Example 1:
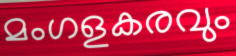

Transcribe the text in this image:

മംഗളകരവും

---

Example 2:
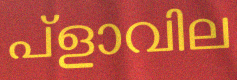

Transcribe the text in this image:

പ്ളാവില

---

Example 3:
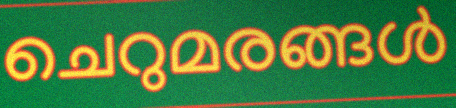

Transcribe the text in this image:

ചെറുമരങ്ങൾ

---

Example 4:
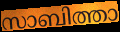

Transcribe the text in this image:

സാബിത്താ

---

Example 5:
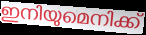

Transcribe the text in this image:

ഇനിയുമെനിക്ക്